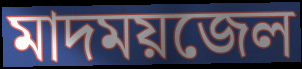
মাদময়জেল